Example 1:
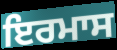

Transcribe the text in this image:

ਇਰਮਾਸ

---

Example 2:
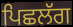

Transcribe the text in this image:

ਪਿਛਲੱਗ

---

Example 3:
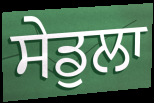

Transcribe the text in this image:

ਸੇਡੁਲਾ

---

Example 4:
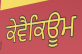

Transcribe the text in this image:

ਕੇਵੈਕਿਊਮ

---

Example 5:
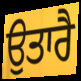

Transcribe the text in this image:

ਉਤਾਰੈ